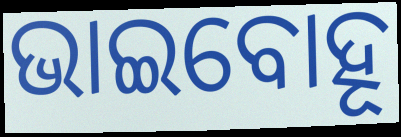
ଭାଇବୋହୂ